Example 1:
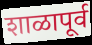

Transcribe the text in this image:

शाळापूर्व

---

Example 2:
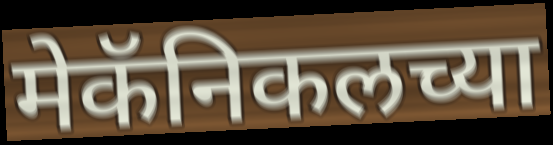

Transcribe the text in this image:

मेकॅनिकलच्या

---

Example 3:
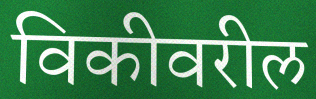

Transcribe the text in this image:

विकीवरील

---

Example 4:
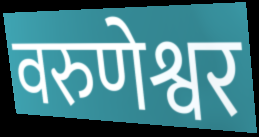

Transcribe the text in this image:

वरुणेश्वर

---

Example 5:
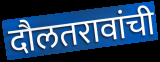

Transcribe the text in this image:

दौलतरावांची